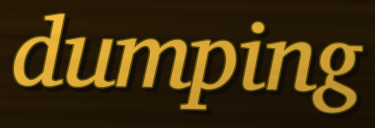
dumping